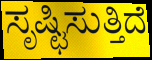
ಸೃಷ್ಟಿಸುತ್ತಿದೆ